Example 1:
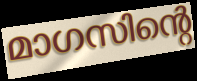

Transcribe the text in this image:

മാഗസിന്റെ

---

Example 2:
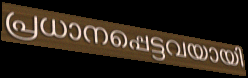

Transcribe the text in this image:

പ്രധാനപ്പെട്ടവയായി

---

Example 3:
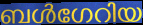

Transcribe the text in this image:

ബൾഗേറിയ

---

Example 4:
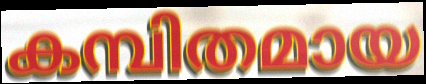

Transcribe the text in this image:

കമ്പിതമായ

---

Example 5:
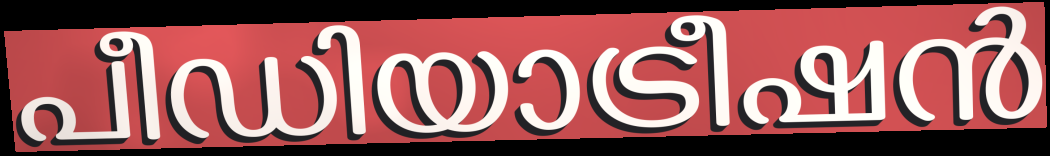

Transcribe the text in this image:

പീഡിയാട്രീഷൻ